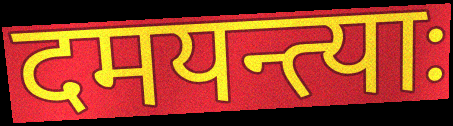
दमयन्त्याः